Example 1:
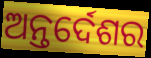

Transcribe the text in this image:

ଅନ୍ତର୍ଦେଶର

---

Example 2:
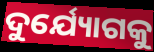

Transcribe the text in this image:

ଦୁର୍ଯ୍ୟୋଗକୁ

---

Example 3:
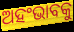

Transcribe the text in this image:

ଅହଂଭାବକୁ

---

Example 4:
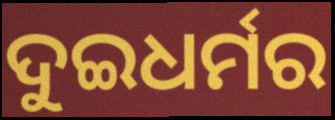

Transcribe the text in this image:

ଦୁଇଧର୍ମର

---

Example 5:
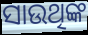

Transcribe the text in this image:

ସାଉଥିଙ୍କ